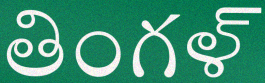
తింగళ్